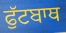
ਫੁੱਟਬਾਥ